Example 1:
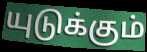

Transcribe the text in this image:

யுடுக்கும்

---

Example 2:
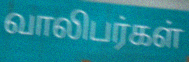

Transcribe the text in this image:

வாலிபர்கள்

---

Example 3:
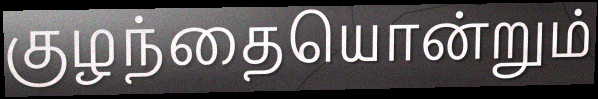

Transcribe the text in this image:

குழந்தையொன்றும்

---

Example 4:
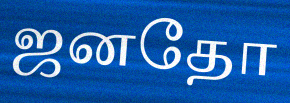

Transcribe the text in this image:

ஜனதோ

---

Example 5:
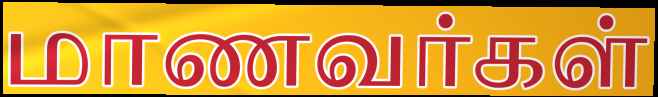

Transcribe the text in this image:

மாணவர்கள்